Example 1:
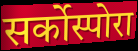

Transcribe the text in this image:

सर्कोस्पोरा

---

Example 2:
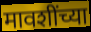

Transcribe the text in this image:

मावशींच्या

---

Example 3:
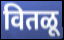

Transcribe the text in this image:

वितळू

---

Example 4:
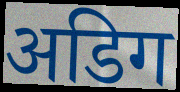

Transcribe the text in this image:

अडिग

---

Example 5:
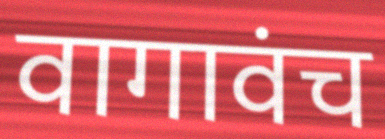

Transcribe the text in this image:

वागावंच